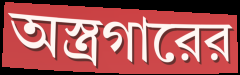
অস্ত্রগারের